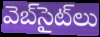
వెబ్‌సైట్‌లు